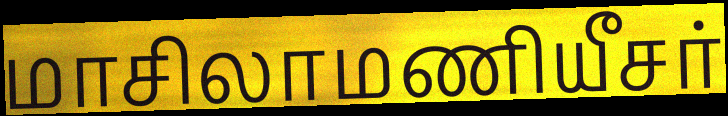
மாசிலாமணியீசர்